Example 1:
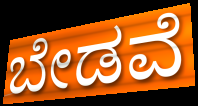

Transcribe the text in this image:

ಬೇಡವೆ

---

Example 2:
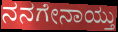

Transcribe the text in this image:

ನನಗೇನಾಯ್ತು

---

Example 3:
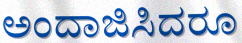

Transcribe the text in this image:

ಅಂದಾಜಿಸಿದರೂ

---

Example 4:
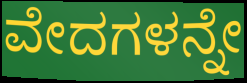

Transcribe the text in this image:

ವೇದಗಳನ್ನೇ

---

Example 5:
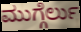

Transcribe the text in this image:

ಮುಗ್ಗೆರ್ಲು